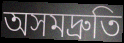
অসমদ্রুতি